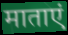
माताएं